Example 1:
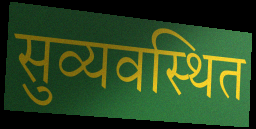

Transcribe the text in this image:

सुव्यवस्थित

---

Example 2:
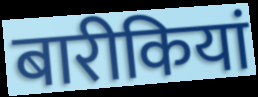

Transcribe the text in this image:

बारीकियां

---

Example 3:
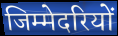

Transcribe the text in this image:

जिम्मेदरियों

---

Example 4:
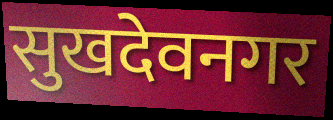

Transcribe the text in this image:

सुखदेवनगर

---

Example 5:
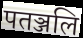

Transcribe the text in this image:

पतञ्जलि